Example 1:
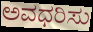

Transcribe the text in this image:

ಅವಧರಿಸು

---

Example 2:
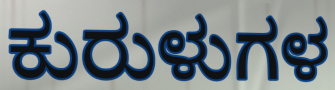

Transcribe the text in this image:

ಕುರುಳುಗಳ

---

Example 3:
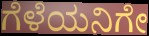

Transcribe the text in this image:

ಗೆಳೆಯನಿಗೇ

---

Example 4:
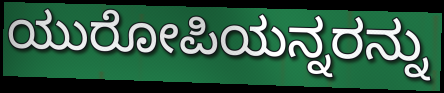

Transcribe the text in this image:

ಯುರೋಪಿಯನ್ನರನ್ನು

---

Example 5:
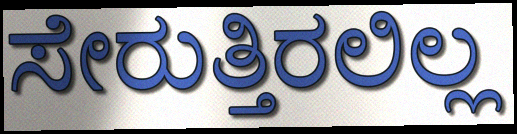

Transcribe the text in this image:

ಸೇರುತ್ತಿರಲಿಲ್ಲ